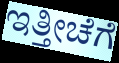
ಇತ್ತೀಚೆಗೆ